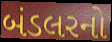
બંડલરનો